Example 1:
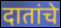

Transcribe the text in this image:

दातांचे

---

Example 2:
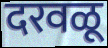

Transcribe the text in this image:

दरवळू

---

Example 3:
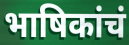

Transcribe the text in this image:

भाषिकांचं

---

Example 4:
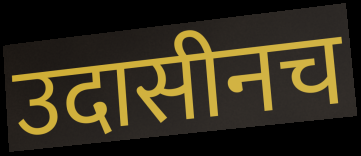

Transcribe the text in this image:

उदासीनच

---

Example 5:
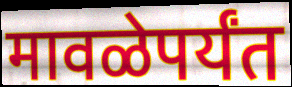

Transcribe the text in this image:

मावळेपर्यंत